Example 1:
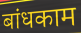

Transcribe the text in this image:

बांधकाम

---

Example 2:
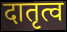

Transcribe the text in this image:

दातृत्व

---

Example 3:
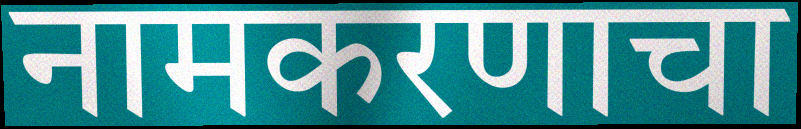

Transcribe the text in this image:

नामकरणाचा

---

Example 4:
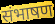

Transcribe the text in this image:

संभाषण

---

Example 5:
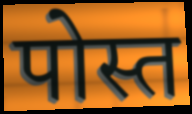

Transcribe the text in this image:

पोस्त